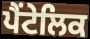
ਪੈਂਟੇਲਿਕ